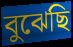
বুঝেছি